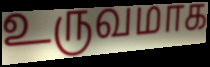
உருவமாக